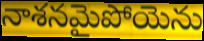
నాశనమైపోయెను